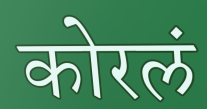
कोरलं